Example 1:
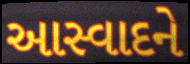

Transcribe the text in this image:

આસ્વાદને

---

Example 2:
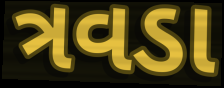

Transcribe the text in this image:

ત્રવડા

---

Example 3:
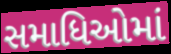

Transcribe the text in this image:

સમાધિઓમાં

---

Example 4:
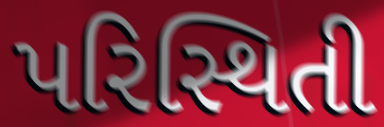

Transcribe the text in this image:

પરિસ્થિતી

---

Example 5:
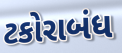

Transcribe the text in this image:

ટકોરાબંધ